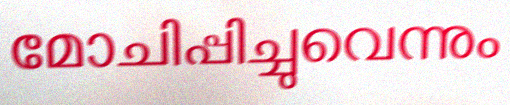
മോചിപ്പിച്ചുവെന്നും